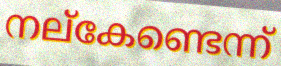
നല്കേണ്ടെന്ന്